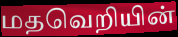
மதவெறியின்